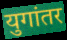
युगांतर